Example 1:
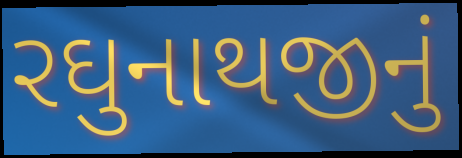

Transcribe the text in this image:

રઘુનાથજીનું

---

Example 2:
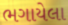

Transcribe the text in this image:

ભગાયેલા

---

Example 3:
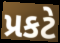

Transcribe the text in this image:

પ્રકટે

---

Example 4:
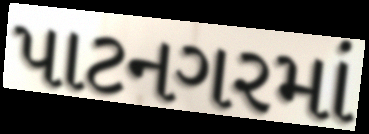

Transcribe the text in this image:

પાટનગરમાં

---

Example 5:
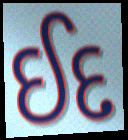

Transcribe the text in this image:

ઈદ